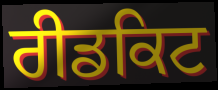
ਰੀਡਕਿਟ